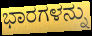
ಭಾರಗಳನ್ನು